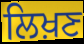
ਲਿਖ਼ਣ